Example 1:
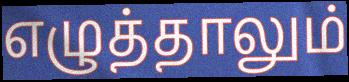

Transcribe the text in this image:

எழுத்தாலும்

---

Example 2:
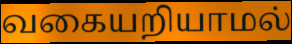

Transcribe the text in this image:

வகையறியாமல்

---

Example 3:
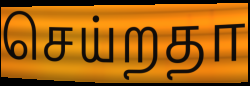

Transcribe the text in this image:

செய்றதா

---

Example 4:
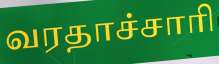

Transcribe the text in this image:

வரதாச்சாரி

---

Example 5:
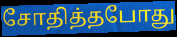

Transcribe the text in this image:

சோதித்தபோது